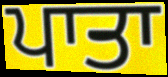
ਪਾਤਾ